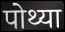
पोथ्या